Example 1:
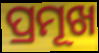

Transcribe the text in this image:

ପ୍ରମୂଖ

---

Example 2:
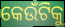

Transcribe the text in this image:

କେଉଁଟିକୁ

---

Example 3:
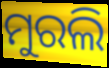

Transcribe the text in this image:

ମୁରଲି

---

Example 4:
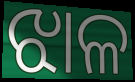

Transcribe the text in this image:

ଝାଳ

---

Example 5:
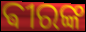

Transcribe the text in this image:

ଵୀରଙ୍କ